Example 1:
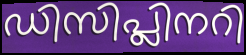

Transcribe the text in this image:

ഡിസിപ്ലിനറി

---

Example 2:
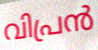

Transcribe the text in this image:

വിപ്രൻ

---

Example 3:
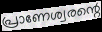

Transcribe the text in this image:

പ്രാണേശ്വരന്റെ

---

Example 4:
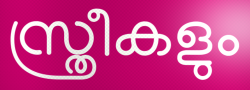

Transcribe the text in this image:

സ്ത്രീകളും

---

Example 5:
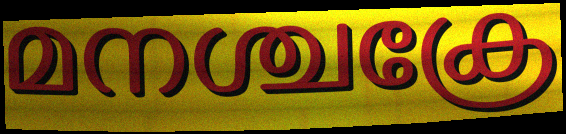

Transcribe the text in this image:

മനശ്ചക്രേ